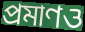
প্রমাণও